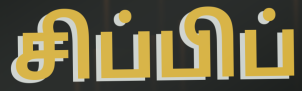
சிப்பிப்